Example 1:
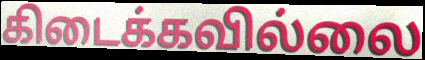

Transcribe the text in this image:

கிடைக்கவில்லை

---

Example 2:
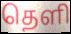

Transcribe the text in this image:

தெளி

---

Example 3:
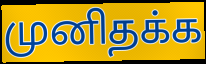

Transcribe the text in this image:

முனிதக்க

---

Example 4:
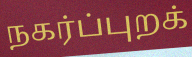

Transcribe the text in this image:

நகர்ப்புறக்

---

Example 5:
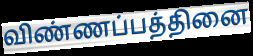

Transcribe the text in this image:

விண்ணப்பத்தினை